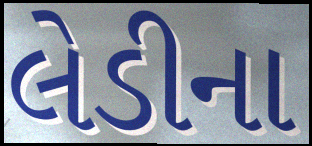
લેડીના